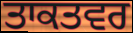
ਤਾਕਤਵਰ